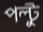
পল্টু